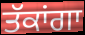
ਤੱਕਾਂਗਾ